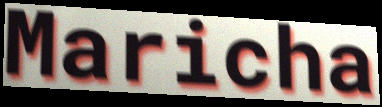
Maricha